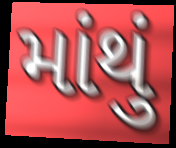
માંથું